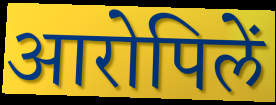
आरोपिलें